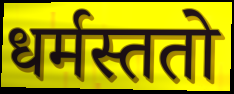
धर्मस्ततो